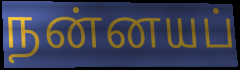
நன்னயப்